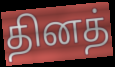
தினத்